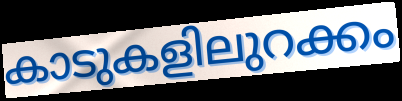
കാടുകളിലുറക്കം